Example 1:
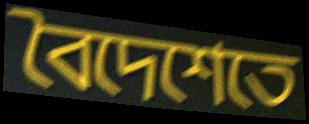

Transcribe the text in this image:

বৈদেশেতে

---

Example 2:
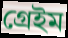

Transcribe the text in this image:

গ্রেইম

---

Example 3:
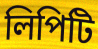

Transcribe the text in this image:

লিপিটি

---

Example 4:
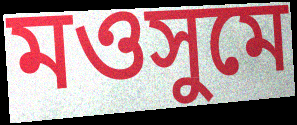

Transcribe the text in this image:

মওসুমে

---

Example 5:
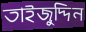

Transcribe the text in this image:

তাইজুদ্দিন